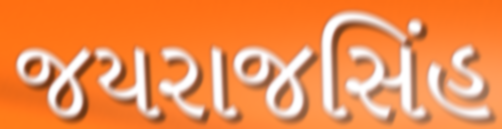
જયરાજસિંહ